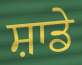
ਸ਼ਾਡੇ